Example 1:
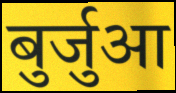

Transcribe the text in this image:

बुर्जुआ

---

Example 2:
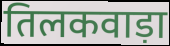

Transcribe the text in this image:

तिलकवाड़ा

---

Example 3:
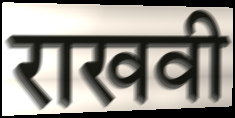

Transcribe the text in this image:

राखवी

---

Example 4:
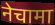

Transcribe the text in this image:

नेचामा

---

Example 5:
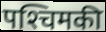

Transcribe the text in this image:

पश्चिमकी